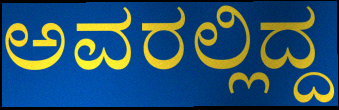
ಅವರಲ್ಲಿದ್ದ